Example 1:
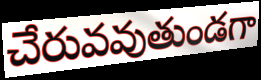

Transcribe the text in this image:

చేరువవుతుండగా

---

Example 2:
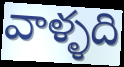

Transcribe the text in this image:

వాళ్ళది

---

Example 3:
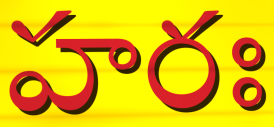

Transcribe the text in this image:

హరః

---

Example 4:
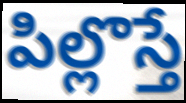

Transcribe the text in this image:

పిల్లొస్తే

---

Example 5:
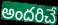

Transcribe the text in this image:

అందరిచే